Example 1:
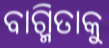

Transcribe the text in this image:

ବାଗ୍ମିତାକୁ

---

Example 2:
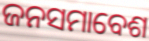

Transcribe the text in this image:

ଜନସମାବେଶ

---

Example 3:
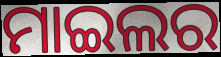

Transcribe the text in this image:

ମାଇଲର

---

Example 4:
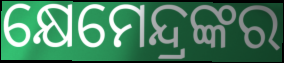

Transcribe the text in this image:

କ୍ଷେମେନ୍ଦ୍ରଙ୍କର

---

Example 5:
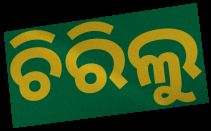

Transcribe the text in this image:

ଚିରିଲୁ